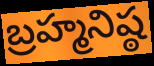
బ్రహ్మనిష్ఠ